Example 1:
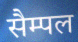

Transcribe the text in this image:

सैम्पल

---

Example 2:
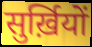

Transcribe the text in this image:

सुर्ख़ियों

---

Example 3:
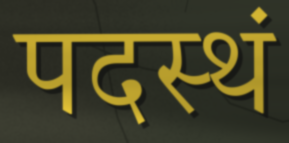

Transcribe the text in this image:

पदस्थं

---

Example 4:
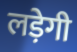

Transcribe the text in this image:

लड़ेगी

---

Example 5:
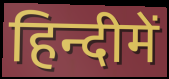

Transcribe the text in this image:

हिन्दीमें